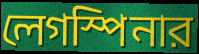
লেগস্পিনার